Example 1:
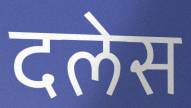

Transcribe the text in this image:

दलेस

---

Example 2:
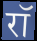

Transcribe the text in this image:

रॉ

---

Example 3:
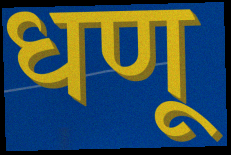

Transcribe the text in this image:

धणू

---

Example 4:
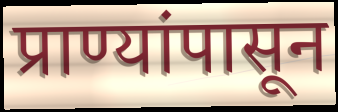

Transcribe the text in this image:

प्राण्यांपासून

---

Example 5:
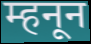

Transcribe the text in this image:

म्हनून